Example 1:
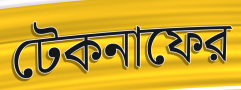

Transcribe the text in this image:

টেকনাফের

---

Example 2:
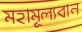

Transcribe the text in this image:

মহামূল্যবান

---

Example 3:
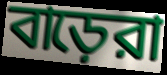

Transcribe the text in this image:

বাড়েরা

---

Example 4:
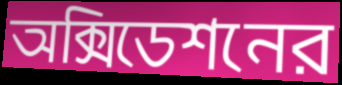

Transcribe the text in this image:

অক্সিডেশনের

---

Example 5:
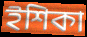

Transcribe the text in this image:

ইশিকা